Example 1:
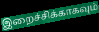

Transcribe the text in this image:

இறைச்சிக்காகவும்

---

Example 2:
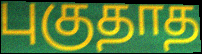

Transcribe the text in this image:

புகுதாத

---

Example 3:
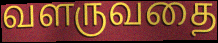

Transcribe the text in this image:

வளருவதை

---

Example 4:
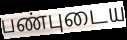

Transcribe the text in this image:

பண்புடைய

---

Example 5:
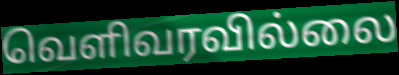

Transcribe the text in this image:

வெளிவரவில்லை